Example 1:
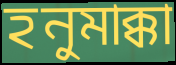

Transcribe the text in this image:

হনুমাক্কা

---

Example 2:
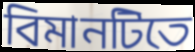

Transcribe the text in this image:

বিমানটিতে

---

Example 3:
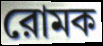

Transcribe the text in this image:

রোমক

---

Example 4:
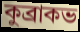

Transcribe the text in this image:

কুব্রাকভ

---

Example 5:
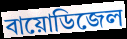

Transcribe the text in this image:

বায়োডিজেল